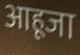
आहूजा